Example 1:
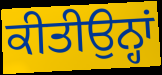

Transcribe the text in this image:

ਕੀਤੀਉਨ੍ਹਾਂ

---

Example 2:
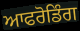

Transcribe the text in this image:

ਆਫਰੋਡਿੰਗ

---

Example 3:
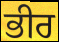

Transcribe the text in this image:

ਭੀਰ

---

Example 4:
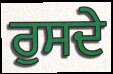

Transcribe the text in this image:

ਰੁਸਦੇ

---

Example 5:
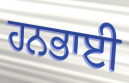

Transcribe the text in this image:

ਹਨਭਾਈ